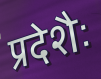
प्रदेशैः